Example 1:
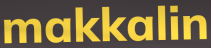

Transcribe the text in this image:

makkalin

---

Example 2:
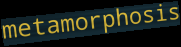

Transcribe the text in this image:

metamorphosis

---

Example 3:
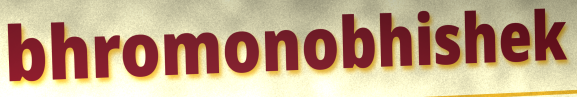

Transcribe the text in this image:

bhromonobhishek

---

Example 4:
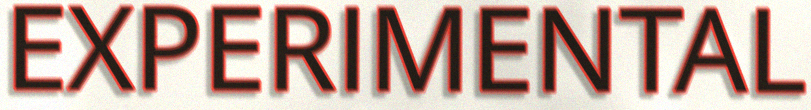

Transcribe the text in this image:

EXPERIMENTAL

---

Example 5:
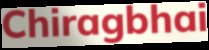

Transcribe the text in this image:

Chiragbhai